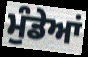
ਮੁੰਡੇਆਂ